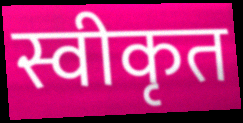
स्वीकृत